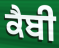
ਕੈਬੀ